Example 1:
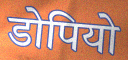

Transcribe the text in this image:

डोपियो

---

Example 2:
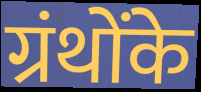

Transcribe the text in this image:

ग्रंथोंके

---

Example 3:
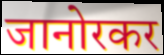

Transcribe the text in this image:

जानोरकर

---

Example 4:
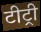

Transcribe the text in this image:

टीट्री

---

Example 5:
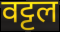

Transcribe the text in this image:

वट्टल